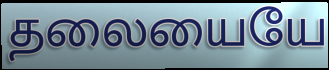
தலையையே